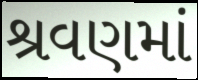
શ્રવણમાં